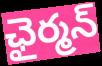
ఛైర్మన్